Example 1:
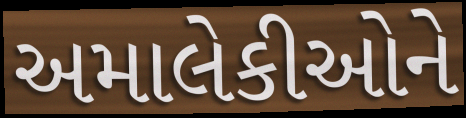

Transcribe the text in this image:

અમાલેકીઓને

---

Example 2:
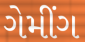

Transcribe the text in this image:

ગેમીંગ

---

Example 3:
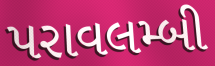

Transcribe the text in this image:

પરાવલમ્બી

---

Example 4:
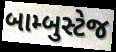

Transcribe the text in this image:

બામ્બુસ્ટેજ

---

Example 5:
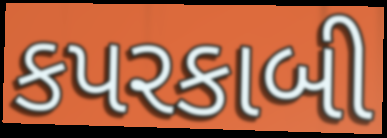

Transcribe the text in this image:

કપરકાબી